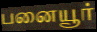
பனையூர்